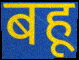
बहू